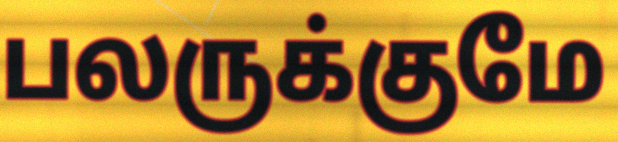
பலருக்குமே